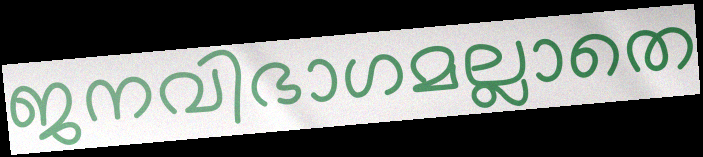
ജനവിഭാഗമല്ലാതെ